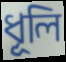
ধূলি